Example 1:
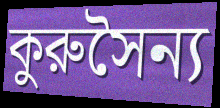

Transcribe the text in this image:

কুরুসৈন্য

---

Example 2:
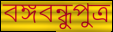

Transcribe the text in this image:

বঙ্গবন্ধুপুত্র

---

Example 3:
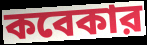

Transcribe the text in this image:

কবেকার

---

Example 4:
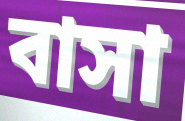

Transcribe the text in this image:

বাসা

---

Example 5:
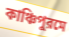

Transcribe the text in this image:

কাঞ্চিপুরমে